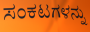
ಸಂಕಟಗಳನ್ನು